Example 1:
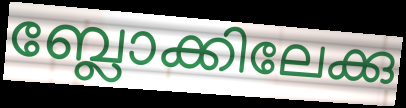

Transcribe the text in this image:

ബ്ലോക്കിലേക്കു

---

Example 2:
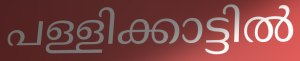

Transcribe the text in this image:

പള്ളിക്കാട്ടിൽ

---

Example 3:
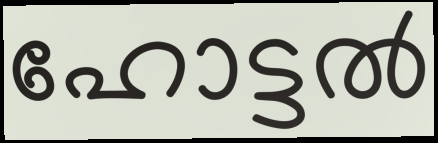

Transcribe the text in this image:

ഹോട്ടൽ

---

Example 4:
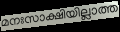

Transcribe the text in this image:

മനഃസാക്ഷിയില്ലാത്ത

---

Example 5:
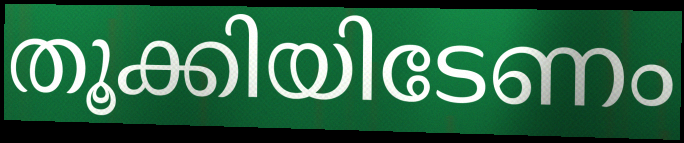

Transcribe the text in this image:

തൂക്കിയിടേണം